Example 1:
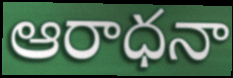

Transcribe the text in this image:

ఆరాధనా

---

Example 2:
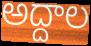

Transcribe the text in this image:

అద్దాల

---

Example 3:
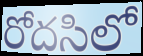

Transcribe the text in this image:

రోదసిలో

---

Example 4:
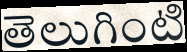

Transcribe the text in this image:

తెలుగింటి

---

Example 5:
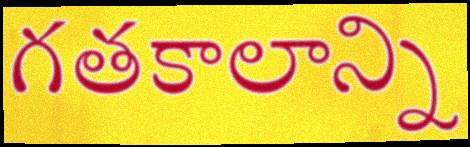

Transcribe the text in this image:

గతకాలాన్ని